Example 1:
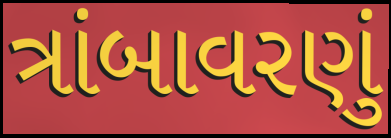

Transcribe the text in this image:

ત્રાંબાવરણું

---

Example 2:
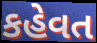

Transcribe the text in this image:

કહેવત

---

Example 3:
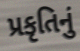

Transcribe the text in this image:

પ્રકૃતિનું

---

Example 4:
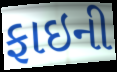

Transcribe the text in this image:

ફાઇની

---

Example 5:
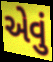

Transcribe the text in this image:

એવું